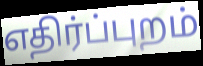
எதிர்ப்புறம்